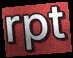
rpt